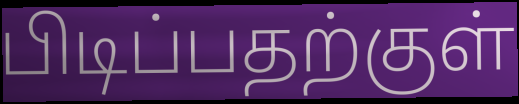
பிடிப்பதற்குள்